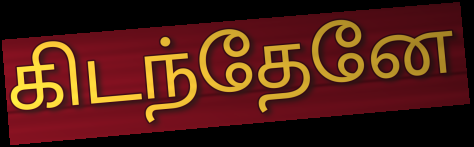
கிடந்தேனே